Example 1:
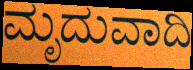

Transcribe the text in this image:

ಮೃದುವಾದಿ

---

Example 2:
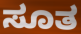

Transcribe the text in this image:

ಸೂತ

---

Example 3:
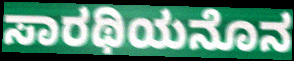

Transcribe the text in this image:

ಸಾರಥಿಯನೊನ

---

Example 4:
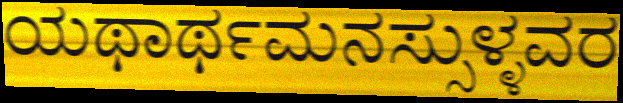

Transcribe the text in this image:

ಯಥಾರ್ಥಮನಸ್ಸುಳ್ಳವರ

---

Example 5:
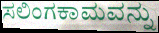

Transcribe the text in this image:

ಸಲಿಂಗಕಾಮವನ್ನು